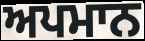
ਅਪਮਾਨ